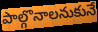
పాల్గొనాలనుకునే